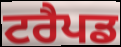
ਟਰੈਪਡ